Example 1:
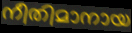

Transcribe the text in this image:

നീതിമാനായ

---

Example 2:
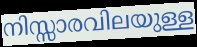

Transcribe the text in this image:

നിസ്സാരവിലയുള്ള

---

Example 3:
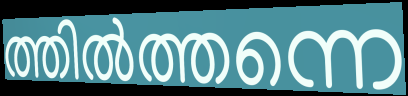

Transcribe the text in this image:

ത്തിൽത്തന്നെ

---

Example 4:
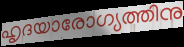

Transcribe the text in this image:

ഹൃദയാരോഗ്യത്തിനു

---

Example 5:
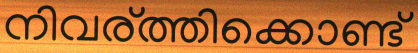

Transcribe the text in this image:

നിവര്ത്തിക്കൊണ്ട്